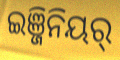
ଇଞ୍ଜିନିୟର୍